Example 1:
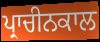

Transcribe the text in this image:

ਪ੍ਰਾਚੀਨਕਾਲ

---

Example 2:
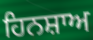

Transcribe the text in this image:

ਹਿਨਸ਼ਾਅ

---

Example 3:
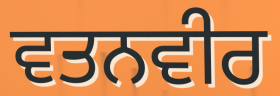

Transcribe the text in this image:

ਵਤਨਵੀਰ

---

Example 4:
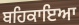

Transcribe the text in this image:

ਬਹਿਕਾਇਆ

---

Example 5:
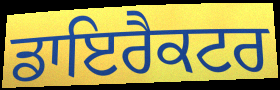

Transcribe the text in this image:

ਡਾਇਰੈਕਟਰ